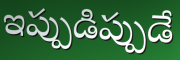
ఇప్పుడిప్పుడే